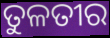
ତୁଳତୀର